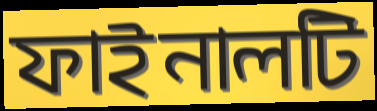
ফাইনালটি